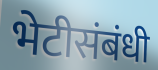
भेटीसंबंधी